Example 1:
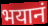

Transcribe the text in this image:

भयानं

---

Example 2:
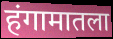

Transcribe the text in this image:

हंगामातला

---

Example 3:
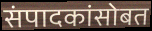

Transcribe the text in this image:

संपादकांसोबत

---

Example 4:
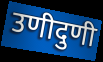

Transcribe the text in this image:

उणीदुणी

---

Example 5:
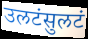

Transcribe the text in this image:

उलटंसुलटं